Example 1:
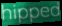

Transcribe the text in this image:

hipped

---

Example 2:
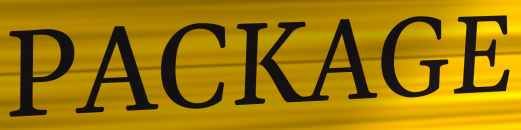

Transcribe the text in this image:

PACKAGE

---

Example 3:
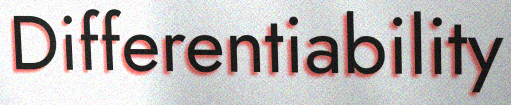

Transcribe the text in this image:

Differentiability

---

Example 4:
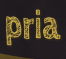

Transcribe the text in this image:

pria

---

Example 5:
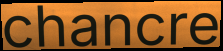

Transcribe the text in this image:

chancre